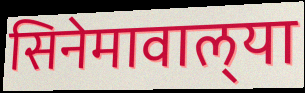
सिनेमावाल्या